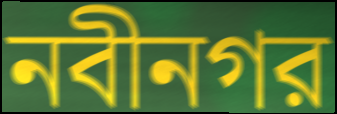
নবীনগর